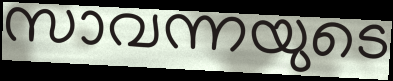
സാവന്നയുടെ